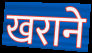
खराने